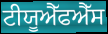
ਟੀਯੂਐੱਫਐੱਸ